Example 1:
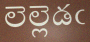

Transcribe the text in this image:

లెల్లెడఁ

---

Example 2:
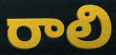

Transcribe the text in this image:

రాలి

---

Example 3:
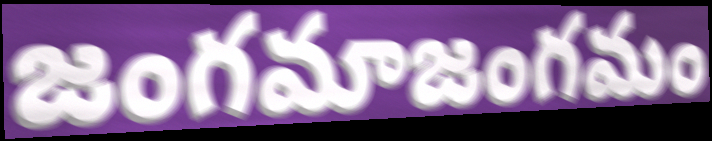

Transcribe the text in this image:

జంగమాజంగమం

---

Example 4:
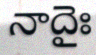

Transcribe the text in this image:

నాదైః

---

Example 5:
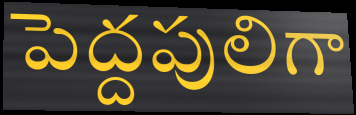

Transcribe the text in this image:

పెద్దపులిగా